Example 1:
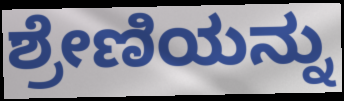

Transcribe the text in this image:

ಶ್ರೇಣಿಯನ್ನು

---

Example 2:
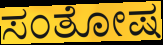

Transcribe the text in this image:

ಸಂತೋಷ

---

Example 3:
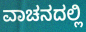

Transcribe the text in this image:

ವಾಚನದಲ್ಲಿ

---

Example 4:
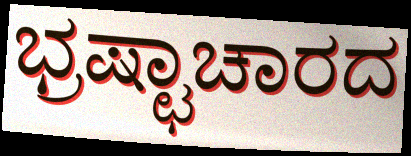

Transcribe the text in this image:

ಭ್ರಷ್ಟಾಚಾರದ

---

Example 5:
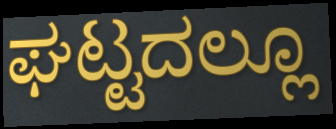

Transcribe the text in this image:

ಘಟ್ಟದಲ್ಲೂ